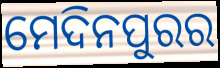
ମେଦିନପୁରର